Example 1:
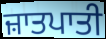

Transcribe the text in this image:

ਜ਼ਾਤਪਾਤੀ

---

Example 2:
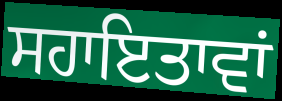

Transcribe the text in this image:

ਸਹਾਇਤਾਵਾਂ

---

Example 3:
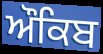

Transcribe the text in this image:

ਔਕਿਬ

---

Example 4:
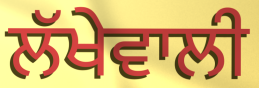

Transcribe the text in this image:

ਲੱਖੇਵਾਲੀ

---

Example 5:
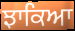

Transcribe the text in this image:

ਝਾਕਿਆ